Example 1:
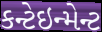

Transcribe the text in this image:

કન્ટેઇન્મેન્ટ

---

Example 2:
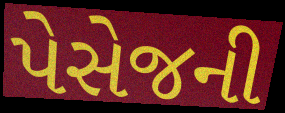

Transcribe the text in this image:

પેસેજની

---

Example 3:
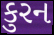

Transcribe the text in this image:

કુરન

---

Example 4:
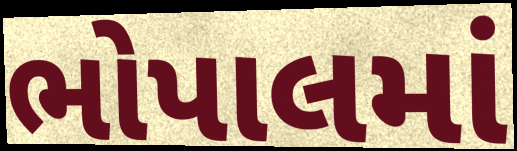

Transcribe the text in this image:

ભોપાલમાં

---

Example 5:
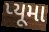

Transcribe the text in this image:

પ્યૂમા